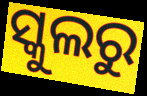
ସ୍କୁଲରୁ